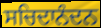
ਸਚਿਦਾਨੰਦਨ